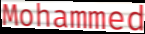
Mohammed